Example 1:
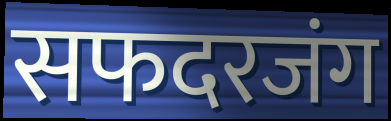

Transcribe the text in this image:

सफदरजंग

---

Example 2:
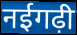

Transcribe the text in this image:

नईगढ़ी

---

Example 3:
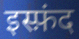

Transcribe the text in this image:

इस्फ़ंद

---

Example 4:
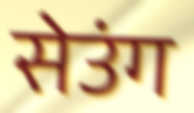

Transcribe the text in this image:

सेउंग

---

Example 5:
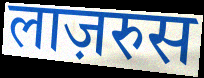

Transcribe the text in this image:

लाज़रुस